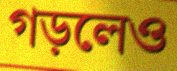
গড়লেও